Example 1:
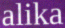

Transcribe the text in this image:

alika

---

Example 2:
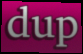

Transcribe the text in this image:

dup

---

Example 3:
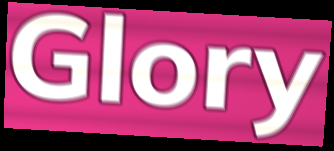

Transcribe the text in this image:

Glory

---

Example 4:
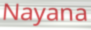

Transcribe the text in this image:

Nayana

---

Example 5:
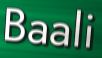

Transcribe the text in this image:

Baali